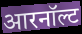
आरनॉल्ट